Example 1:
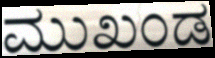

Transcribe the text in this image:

ಮುಖಂಡ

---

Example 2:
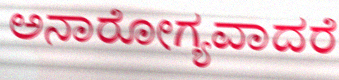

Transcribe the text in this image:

ಅನಾರೋಗ್ಯವಾದರೆ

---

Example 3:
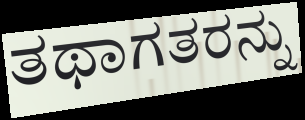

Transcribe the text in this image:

ತಥಾಗತರನ್ನು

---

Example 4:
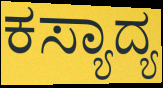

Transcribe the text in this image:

ಕಸ್ಯಾದ್ಯ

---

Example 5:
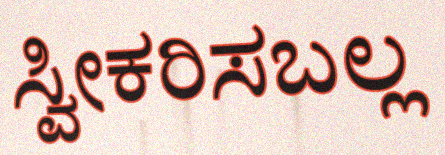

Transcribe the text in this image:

ಸ್ವೀಕರಿಸಬಲ್ಲ